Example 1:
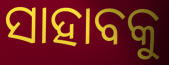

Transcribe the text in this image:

ସାହାବକୁ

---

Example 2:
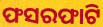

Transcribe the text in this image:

ଫସରଫାଟି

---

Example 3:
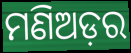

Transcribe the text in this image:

ମଣିଅଡ଼ର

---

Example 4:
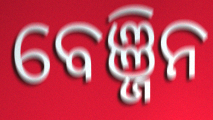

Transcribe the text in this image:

ବେଞ୍ଜିନ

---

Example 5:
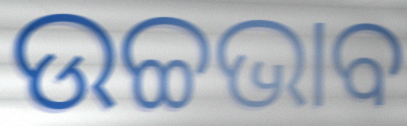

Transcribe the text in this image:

ଉଚ୍ଚଭାବ